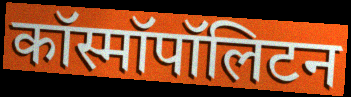
कॉस्मॉपॉलिटन